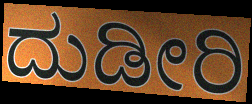
ದುಡೀರಿ